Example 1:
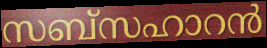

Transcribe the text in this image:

സബ്സഹാറൻ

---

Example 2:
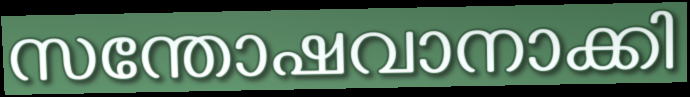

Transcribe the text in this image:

സന്തോഷവാനാക്കി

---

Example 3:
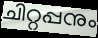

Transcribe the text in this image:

ചിറ്റപ്പനും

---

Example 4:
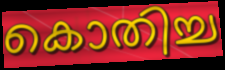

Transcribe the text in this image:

കൊതിച്ച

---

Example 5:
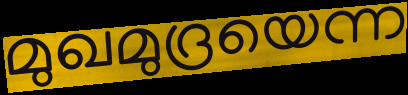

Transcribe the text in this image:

മുഖമുദ്രയെന്ന